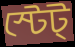
স্টেট্